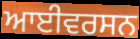
ਆਈਵਰਸਨ